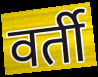
वर्ती